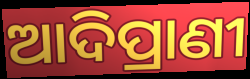
ଆଦିପ୍ରାଣୀ